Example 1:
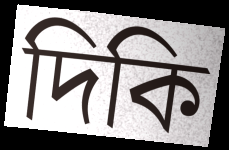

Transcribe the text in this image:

দিকি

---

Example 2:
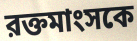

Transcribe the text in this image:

রক্তমাংসকে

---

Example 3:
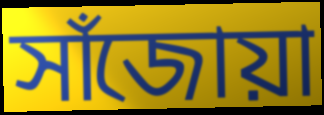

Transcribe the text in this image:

সাঁজোয়া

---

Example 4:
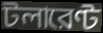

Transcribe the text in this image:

টলারেণ্ট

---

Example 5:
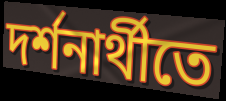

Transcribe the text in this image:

দর্শনার্থীতে